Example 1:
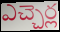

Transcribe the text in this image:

ఎచ్చెర్ల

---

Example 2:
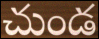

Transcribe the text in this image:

చుండ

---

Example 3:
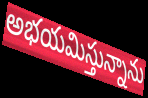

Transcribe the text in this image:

అభయమిస్తున్నాను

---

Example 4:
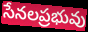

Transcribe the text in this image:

సేనలప్రభువు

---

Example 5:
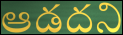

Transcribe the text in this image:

ఆడదని